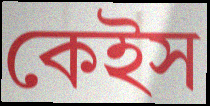
কেইস